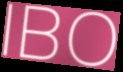
IBO